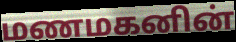
மணமகனின்